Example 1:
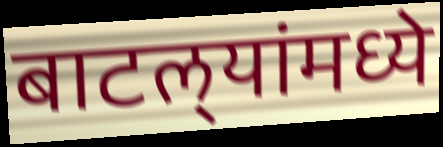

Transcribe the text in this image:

बाटल्यांमध्ये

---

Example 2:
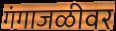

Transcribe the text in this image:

गंगाजळीवर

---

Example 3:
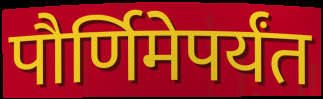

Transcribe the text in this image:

पौर्णिमेपर्यंत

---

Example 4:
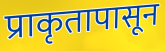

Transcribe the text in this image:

प्राकृतापासून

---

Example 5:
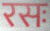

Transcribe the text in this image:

रसः